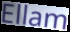
Ellam